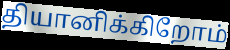
தியானிக்கிறோம்